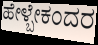
ಹೇಳ್ಬೇಕಂದರ